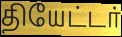
தியேட்டர்